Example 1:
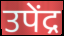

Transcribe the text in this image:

उपेंद्र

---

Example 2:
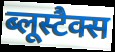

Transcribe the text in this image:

ब्लूस्टैक्स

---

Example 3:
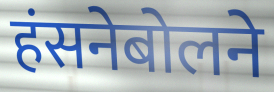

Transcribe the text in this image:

हंसनेबोलने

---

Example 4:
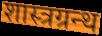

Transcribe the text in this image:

शास्त्रग्रन्थ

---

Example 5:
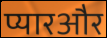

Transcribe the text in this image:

प्यारऔर